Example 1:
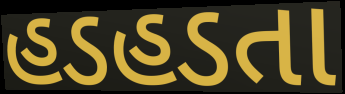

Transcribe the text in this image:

હડહડતા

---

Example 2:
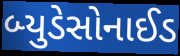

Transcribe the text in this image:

બ્યુડેસોનાઈડ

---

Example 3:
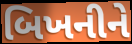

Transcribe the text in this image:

બિખનીને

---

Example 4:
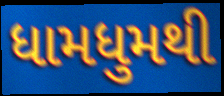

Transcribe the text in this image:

ધામધુમથી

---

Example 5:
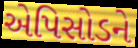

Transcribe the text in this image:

એપિસોડને